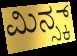
ಮಿನ್ಸ್ಕ್